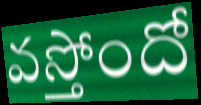
వస్తోందో